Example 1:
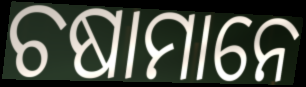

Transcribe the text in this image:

ଚଷାମାନେ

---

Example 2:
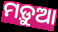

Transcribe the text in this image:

ମଡ଼ୁଆ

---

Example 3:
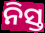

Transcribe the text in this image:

ନିସ୍ତ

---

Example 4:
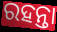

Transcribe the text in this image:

ରହନ୍ତା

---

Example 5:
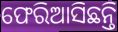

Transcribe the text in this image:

ଫେରିଆସିଛନ୍ତି